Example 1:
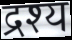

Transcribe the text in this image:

द्रश्य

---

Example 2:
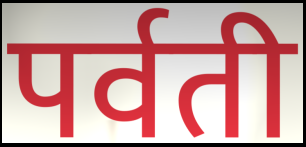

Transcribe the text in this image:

पर्वती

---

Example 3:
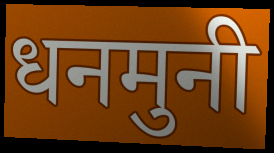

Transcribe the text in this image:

धनमुनी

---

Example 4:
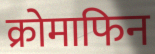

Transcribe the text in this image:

क्रोमाफिन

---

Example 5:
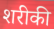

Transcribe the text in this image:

शरीकी